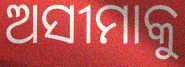
ଅସୀମାକୁ